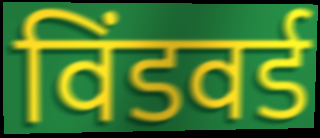
विंडवर्ड